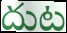
దుట